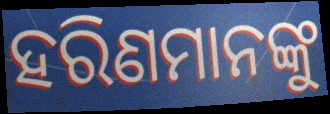
ହରିଣମାନଙ୍କୁ